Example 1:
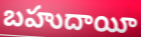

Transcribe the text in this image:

బహుదాయీ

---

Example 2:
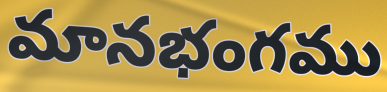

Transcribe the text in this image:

మానభంగము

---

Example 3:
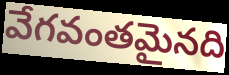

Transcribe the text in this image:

వేగవంతమైనది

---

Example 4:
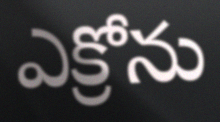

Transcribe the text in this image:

ఎక్రోను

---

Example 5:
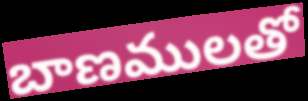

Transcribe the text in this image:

బాణములతో